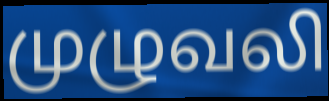
முழுவலி